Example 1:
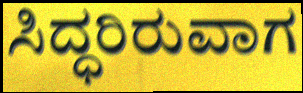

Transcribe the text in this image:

ಸಿದ್ಧರಿರುವಾಗ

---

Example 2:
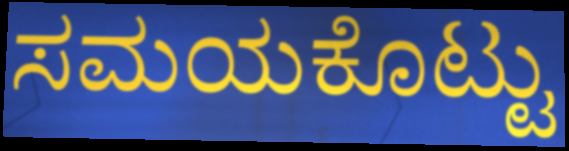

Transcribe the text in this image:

ಸಮಯಕೊಟ್ಟು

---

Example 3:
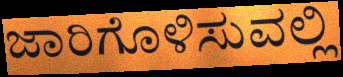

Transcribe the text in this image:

ಜಾರಿಗೊಳಿಸುವಲ್ಲಿ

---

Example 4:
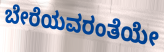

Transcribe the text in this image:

ಬೇರೆಯವರಂತೆಯೇ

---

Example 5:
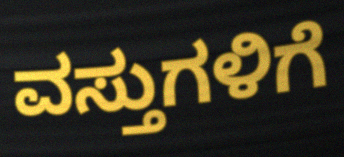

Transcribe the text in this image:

ವಸ್ತುಗಳಿಗೆ